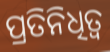
ପ୍ରତିନିଧିତ୍ୱ